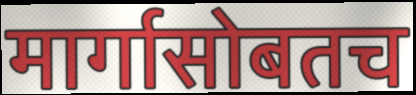
मार्गासोबतच